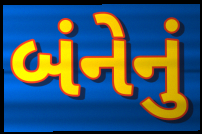
બંનેનું